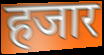
हजार